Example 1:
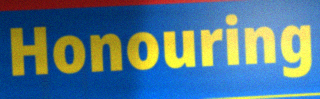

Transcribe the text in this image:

Honouring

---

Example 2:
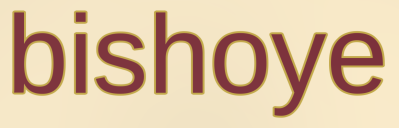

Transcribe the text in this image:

bishoye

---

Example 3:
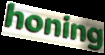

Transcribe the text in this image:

honing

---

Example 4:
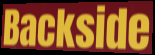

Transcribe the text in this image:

Backside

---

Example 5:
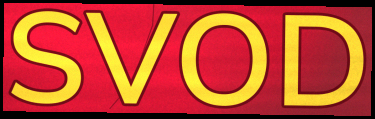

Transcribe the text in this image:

SVOD